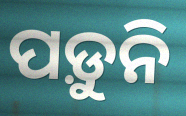
ପଡ଼ୁନି